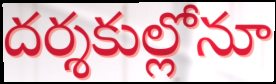
దర్శకుల్లోనూ